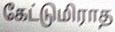
கேட்டுமிராத